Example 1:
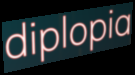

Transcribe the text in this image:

diplopia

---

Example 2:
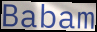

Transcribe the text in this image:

Babam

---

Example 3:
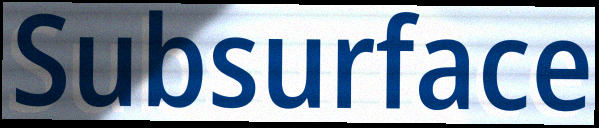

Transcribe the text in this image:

Subsurface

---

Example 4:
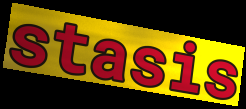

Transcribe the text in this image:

stasis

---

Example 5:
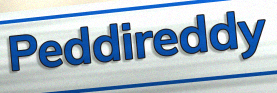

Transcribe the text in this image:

Peddireddy